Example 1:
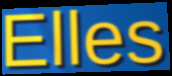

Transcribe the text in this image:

Elles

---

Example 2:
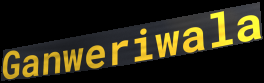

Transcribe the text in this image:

Ganweriwala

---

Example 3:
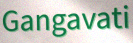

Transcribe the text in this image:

Gangavati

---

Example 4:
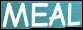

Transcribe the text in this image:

MEAL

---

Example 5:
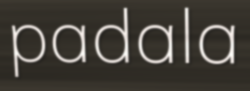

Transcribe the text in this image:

padala